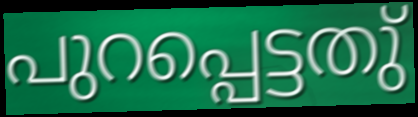
പുറപ്പെട്ടതു്